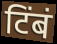
टिंबं